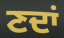
ਣਦਾਂ